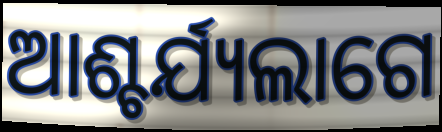
ଆଶ୍ଚର୍ଯ୍ୟଲାଗେ